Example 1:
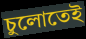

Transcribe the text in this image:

চুলোতেই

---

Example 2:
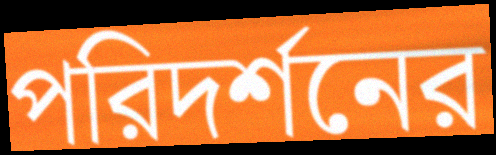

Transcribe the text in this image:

পরিদর্শনের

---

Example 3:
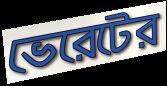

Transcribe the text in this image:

ভেরেটের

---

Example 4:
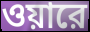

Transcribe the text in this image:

ওয়ারে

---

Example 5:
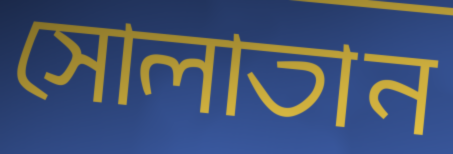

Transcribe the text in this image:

সোলাতান